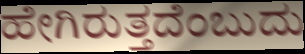
ಹೇಗಿರುತ್ತದೆಂಬುದು